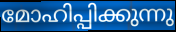
മോഹിപ്പിക്കുന്നു